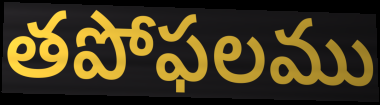
తపోఫలము